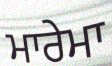
ਮਾਰੇਮਾ